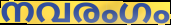
നവരംഗം